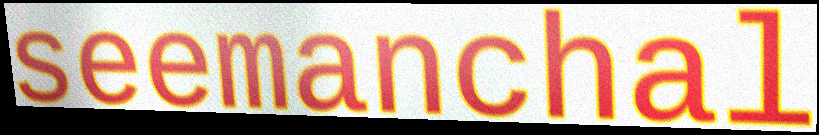
seemanchal